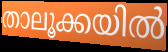
താലൂക്കയിൽ